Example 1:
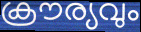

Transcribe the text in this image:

ക്രൗര്യവും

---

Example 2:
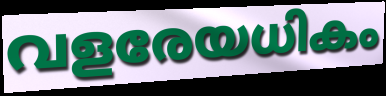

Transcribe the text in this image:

വളരേയധികം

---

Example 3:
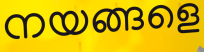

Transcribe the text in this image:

നയങ്ങളെ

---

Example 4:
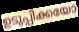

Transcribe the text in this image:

ഉടുപ്പിക്കയോ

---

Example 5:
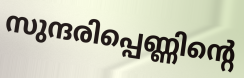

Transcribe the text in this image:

സുന്ദരിപ്പെണ്ണിന്റെ